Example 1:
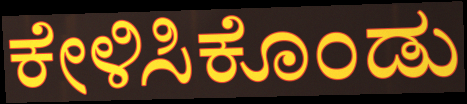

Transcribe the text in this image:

ಕೇಳಿಸಿಕೊಂಡು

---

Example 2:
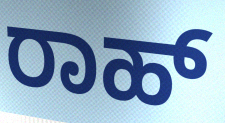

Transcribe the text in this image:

ರಾಹ್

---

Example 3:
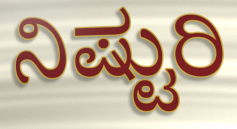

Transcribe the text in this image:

ನಿಷ್ಟುರಿ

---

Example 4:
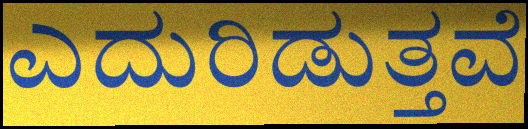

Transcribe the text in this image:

ಎದುರಿಡುತ್ತವೆ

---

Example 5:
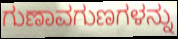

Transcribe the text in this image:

ಗುಣಾವಗುಣಗಳನ್ನು